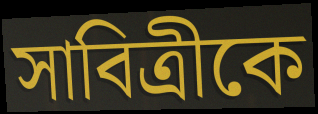
সাবিত্রীকে